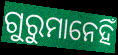
ଗୁରୁମାନେହିଁ